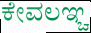
ಕೇವಲಞ್ಚ